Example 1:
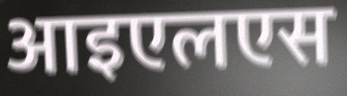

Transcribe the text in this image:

आइएलएस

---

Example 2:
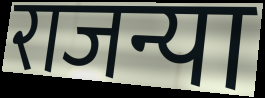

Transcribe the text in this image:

राजन्या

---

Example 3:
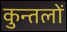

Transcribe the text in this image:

कुन्तलों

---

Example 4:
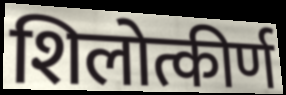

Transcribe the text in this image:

शिलोत्कीर्ण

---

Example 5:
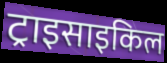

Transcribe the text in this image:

ट्राइसाइकिल